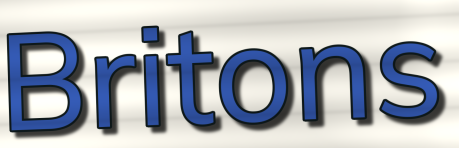
Britons